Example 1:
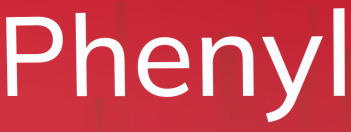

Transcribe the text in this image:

Phenyl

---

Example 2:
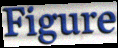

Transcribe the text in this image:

Figure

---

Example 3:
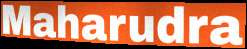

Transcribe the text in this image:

Maharudra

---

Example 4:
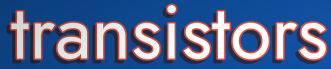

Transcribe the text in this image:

transistors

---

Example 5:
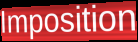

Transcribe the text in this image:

Imposition